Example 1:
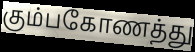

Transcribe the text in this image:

கும்பகோணத்து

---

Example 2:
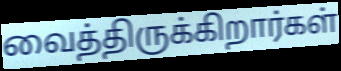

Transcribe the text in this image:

வைத்திருக்கிறார்கள்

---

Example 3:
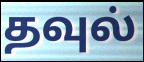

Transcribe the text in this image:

தவுல்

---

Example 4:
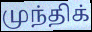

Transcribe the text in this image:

முந்திக்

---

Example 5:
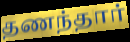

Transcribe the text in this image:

தணந்தார்